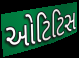
ઓટિટિસ